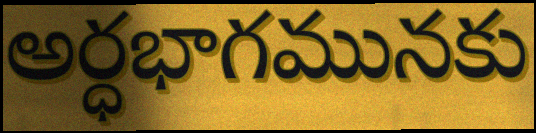
అర్ధభాగమునకు